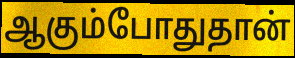
ஆகும்போதுதான்